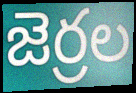
జెర్రల